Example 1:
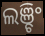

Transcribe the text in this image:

ଲଞ୍ଚିଂ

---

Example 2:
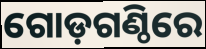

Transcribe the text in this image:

ଗୋଡ଼ଗଣ୍ଠିରେ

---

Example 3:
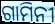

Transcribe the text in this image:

ଗାମିନୀ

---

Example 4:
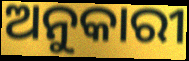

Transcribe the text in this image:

ଅନୁକାରୀ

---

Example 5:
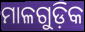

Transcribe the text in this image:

ମାଳଗୁଡ଼ିକ